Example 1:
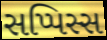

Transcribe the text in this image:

સપ્પિસ્સ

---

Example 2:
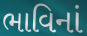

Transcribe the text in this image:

ભાવિનાં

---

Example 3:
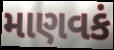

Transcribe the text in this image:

માણવકં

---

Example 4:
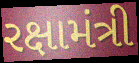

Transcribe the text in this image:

રક્ષામંત્રી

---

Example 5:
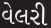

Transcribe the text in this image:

વેલરી